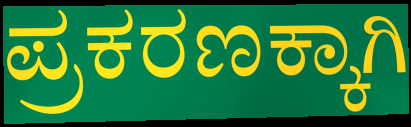
ಪ್ರಕರಣಕ್ಕಾಗಿ